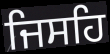
ਜਿਸਹਿ